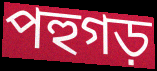
পহুগড়